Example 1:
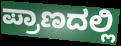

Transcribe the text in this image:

ಪ್ರಾಣದಲ್ಲಿ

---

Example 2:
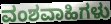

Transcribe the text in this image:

ವಂಶವಾಹಿಗಳು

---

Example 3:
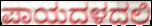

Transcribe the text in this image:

ಪಾಯದಳದಲಿ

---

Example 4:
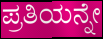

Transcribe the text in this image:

ಪ್ರತಿಯನ್ನೇ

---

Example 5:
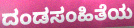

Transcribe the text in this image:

ದಂಡಸಂಹಿತೆಯ